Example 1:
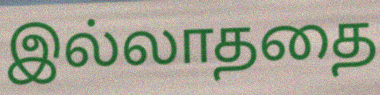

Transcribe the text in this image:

இல்லாததை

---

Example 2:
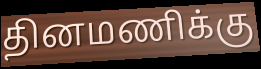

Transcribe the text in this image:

தினமணிக்கு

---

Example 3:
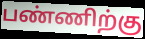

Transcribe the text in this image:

பண்ணிற்கு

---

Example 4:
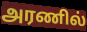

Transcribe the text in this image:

அரணில்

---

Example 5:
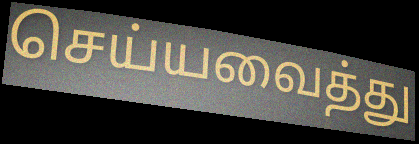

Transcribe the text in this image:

செய்யவைத்து